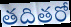
తదితరో